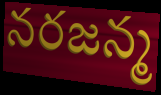
నరజన్మ